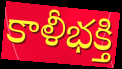
కాళీభక్తి